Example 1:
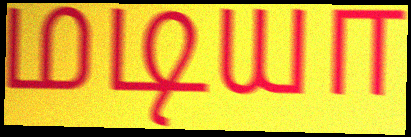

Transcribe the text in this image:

மடியா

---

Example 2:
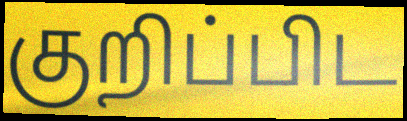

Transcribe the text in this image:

குறிப்பிட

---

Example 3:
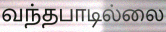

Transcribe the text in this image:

வந்தபாடில்லை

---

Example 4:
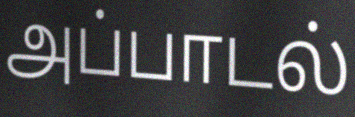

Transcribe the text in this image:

அப்பாடல்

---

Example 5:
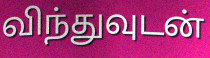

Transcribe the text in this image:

விந்துவுடன்